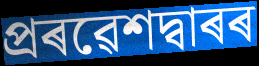
প্ৰৰৱেশদ্বাৰৰ